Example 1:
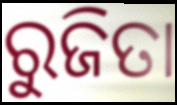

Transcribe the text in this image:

ରୁଜିତା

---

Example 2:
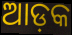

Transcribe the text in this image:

ଆଡ଼କ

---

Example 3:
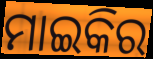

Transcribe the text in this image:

ମାଇକିର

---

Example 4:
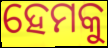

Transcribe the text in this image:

ହେମକୁ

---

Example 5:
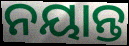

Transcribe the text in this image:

ନୟାନ୍ତ